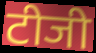
टीजी